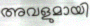
അവളുമായി